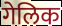
गेलिक